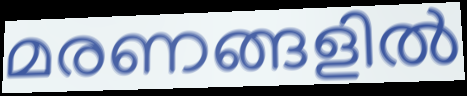
മരണങ്ങളിൽ